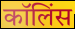
कॉलिंस